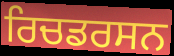
ਰਿਚਡਰਸਨ